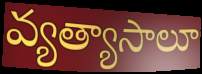
వ్యత్యాసాలూ